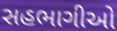
સહભાગીઓ